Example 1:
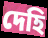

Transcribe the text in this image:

দেহি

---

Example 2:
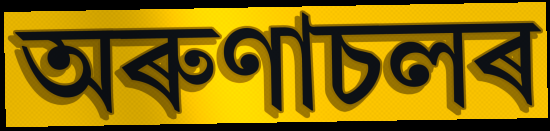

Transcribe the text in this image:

অৰুণাচলৰ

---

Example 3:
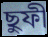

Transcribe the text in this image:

ছুফী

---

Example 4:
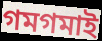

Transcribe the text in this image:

গমগমাই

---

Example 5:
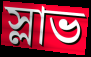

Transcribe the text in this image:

স্লাভ